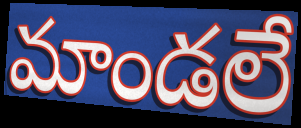
మాండలే